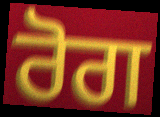
ਰੋਗ